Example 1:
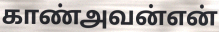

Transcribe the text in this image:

காண்அவன்என்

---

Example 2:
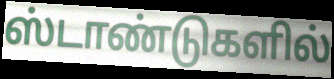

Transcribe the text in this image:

ஸ்டாண்டுகளில்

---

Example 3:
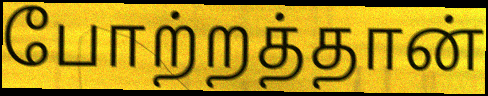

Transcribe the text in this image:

போற்றத்தான்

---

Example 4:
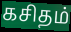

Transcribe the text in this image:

கசிதம்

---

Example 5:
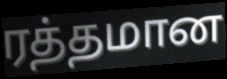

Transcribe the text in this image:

ரத்தமான